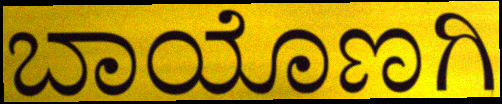
ಬಾಯೊಣಗಿ